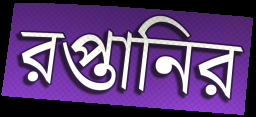
রপ্তানির